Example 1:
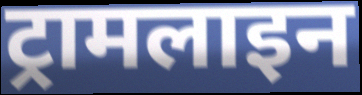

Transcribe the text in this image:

ट्रामलाइन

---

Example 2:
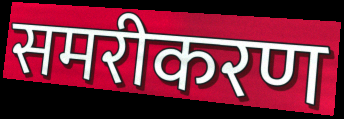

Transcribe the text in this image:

समरीकरण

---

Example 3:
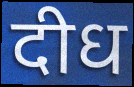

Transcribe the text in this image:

दीध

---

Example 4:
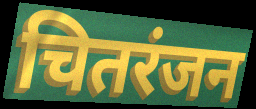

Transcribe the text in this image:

चितरंजन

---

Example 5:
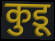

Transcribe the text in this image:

कुडू